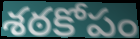
శఠకోపం